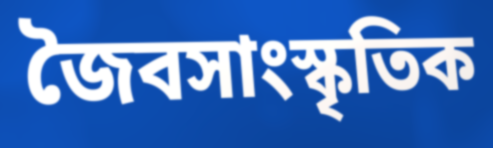
জৈবসাংস্কৃতিক